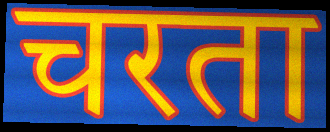
चरता